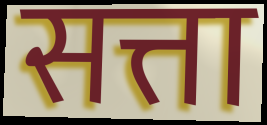
सत्ता